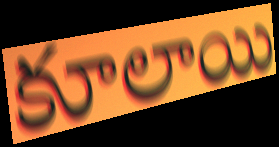
కూలాయి